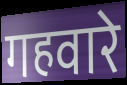
गहवारे